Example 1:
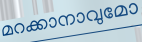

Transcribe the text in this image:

മറക്കാനാവുമോ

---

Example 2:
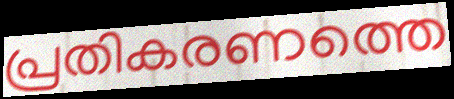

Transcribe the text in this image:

പ്രതികരണത്തെ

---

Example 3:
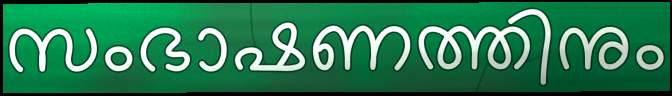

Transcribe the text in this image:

സംഭാഷണത്തിനും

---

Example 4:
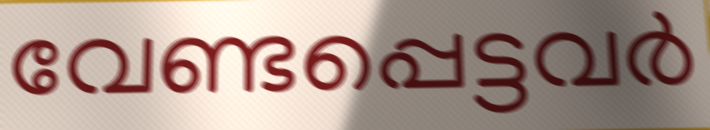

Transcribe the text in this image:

വേണ്ടപ്പെട്ടവർ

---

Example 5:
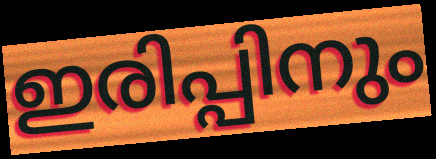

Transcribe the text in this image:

ഇരിപ്പിനും